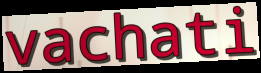
vachati